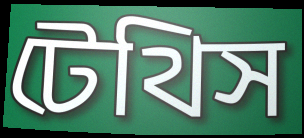
টেথিস